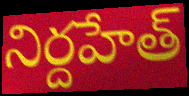
నిర్దహేత్